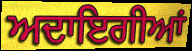
ਅਦਾਇਗੀਆਂ